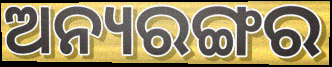
ଅନ୍ୟରଙ୍ଗର